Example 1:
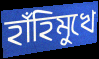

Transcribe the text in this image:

হাঁহিমুখে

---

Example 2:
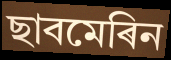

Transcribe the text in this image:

ছাবমেৰিন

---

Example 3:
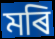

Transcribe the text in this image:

মৰি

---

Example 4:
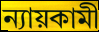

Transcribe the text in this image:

ন্যায়কামী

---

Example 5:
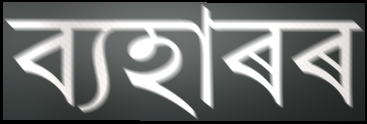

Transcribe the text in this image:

ব্যহাৰৰ